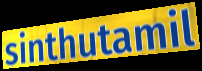
sinthutamil